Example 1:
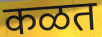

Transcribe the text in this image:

कळत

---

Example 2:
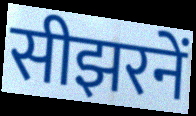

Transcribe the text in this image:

सीझरनें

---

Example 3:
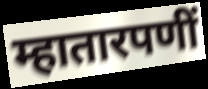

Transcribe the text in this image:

म्हातारपणीं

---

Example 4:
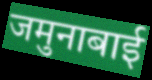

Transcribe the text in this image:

जमुनाबाई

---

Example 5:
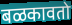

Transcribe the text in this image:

बळकावतो